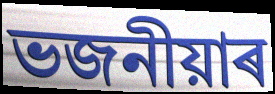
ভজনীয়াৰ